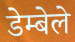
डेम्बेले